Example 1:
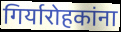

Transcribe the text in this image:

गिर्यारोहकांना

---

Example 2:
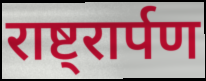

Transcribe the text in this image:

राष्ट्रार्पण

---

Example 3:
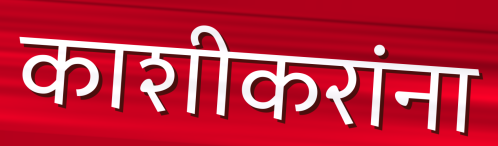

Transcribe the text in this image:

काशीकरांना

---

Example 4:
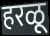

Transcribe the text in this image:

हरळू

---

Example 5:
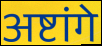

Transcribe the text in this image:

अष्टांगे